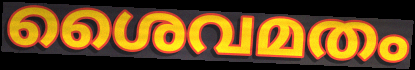
ശൈവമതം